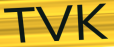
TVK